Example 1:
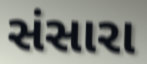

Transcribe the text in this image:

સંસારા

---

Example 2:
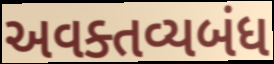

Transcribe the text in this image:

અવક્તવ્યબંધ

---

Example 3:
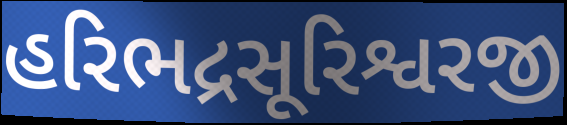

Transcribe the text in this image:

હરિભદ્રસૂરિશ્વરજી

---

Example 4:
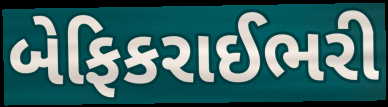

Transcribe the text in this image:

બેફિકરાઈભરી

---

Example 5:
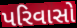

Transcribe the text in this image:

પરિવાસો